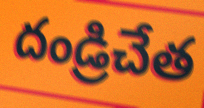
దండ్రిచేత